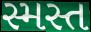
સ્મસ્ત